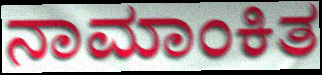
ನಾಮಾಂಕಿತ